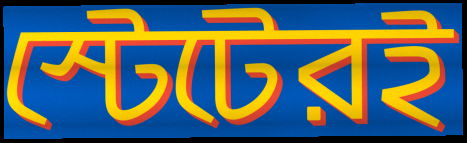
স্টেটেরই